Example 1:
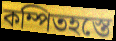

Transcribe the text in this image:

কম্পিতহস্তে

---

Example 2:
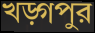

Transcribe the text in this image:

খড়্গপুর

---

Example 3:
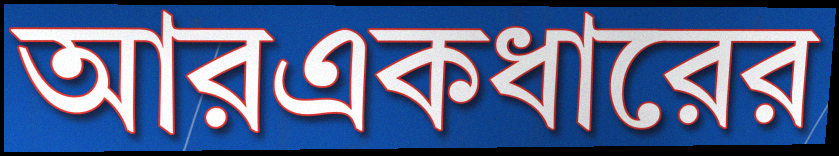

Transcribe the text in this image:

আরএকধারের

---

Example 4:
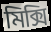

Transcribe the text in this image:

মিক্সি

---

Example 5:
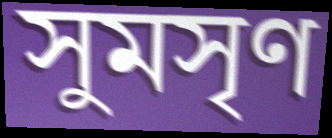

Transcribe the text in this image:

সুমসৃণ